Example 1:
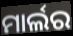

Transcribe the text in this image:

ମାର୍ଲର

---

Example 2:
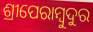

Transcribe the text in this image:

ଶ୍ରୀପେରାମ୍ବୁଦୁର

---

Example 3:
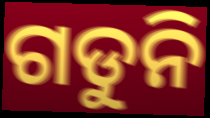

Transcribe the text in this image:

ଗଡୁନି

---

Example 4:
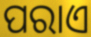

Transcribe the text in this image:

ପରାଏ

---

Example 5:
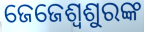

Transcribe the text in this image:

ଜେଜେଶ୍ୱଶୁରଙ୍କ